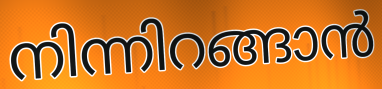
നിന്നിറങ്ങാൻ